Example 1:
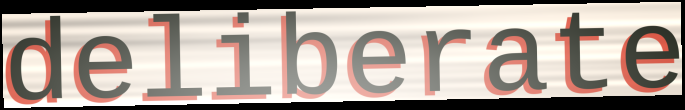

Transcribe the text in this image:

deliberate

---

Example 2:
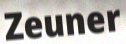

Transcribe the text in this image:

Zeuner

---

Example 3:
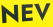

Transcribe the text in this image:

NEV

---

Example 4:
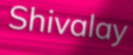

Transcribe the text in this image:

Shivalay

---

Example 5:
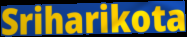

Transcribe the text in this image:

Sriharikota